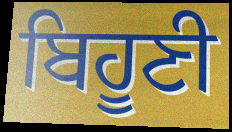
ਬਿਹੂਣੀ